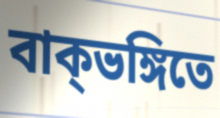
বাক্ভঙ্গিতে